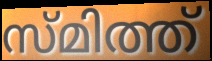
സ്മിത്ത്